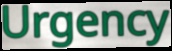
Urgency